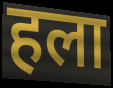
हला